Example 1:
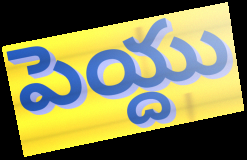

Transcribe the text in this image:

పెయ్దు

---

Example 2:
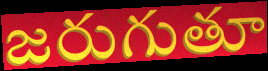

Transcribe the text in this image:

జరుగుతూ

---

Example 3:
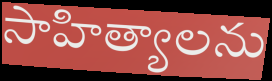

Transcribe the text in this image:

సాహిత్యాలను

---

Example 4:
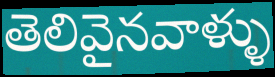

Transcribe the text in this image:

తెలివైనవాళ్ళు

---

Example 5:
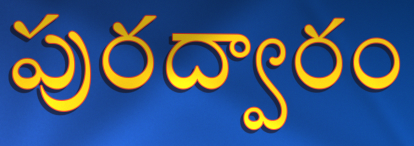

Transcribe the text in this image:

పురద్వారం